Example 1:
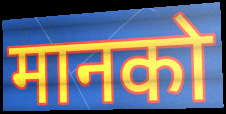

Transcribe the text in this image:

मानको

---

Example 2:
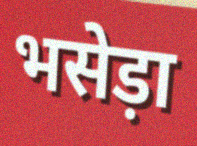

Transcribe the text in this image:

भसेड़ा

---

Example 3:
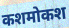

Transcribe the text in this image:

कशमोकश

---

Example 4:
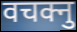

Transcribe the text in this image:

वचक्नु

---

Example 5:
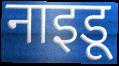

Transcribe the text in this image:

नाइडू